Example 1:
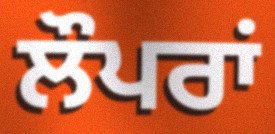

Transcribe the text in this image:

ਲੌਪਰਾਂ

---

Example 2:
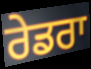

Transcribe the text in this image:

ਰੇਡਰਾ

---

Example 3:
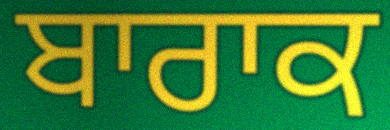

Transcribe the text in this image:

ਬਾਰਾਕ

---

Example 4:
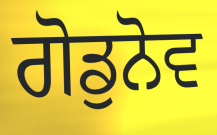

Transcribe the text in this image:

ਗੋਡੁਨੋਵ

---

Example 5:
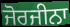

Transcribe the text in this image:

ਜੋਰਜੀਨਾ